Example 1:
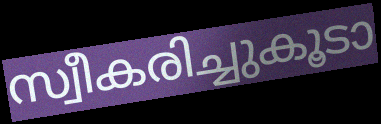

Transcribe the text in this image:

സ്വീകരിച്ചുകൂടാ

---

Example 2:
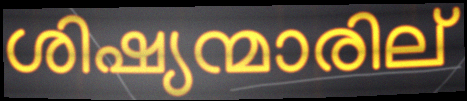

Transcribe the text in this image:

ശിഷ്യന്മാരില്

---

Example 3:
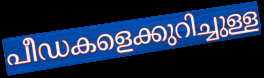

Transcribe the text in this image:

പീഡകളെക്കുറിച്ചുള്ള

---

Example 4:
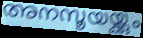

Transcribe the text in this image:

അനസൂയയ്ക്കും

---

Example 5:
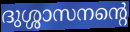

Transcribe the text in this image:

ദുശ്ശാസനന്റെ